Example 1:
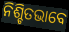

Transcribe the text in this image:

ନିଶ୍ଚିତଭାବେ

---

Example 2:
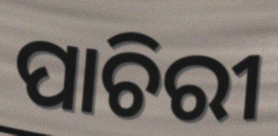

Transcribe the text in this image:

ପାଚିରୀ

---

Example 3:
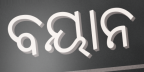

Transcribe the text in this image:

ବୟାନ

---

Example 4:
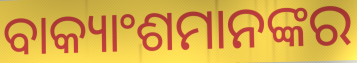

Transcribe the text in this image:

ବାକ୍ୟାଂଶମାନଙ୍କର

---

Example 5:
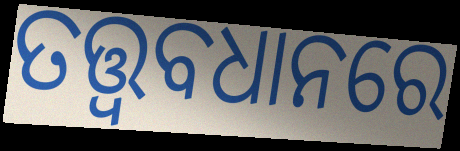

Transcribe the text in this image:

ତତ୍ତ୍ଵବଧାନରେ